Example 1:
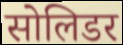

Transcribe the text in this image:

सोलिडर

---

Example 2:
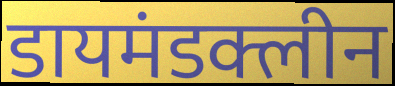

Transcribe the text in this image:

डायमंडक्लीन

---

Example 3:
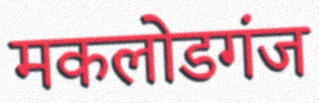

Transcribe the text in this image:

मकलोडगंज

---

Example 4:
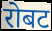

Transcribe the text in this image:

रोबट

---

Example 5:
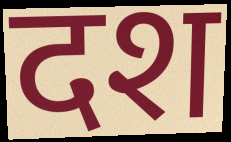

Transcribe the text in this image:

दश